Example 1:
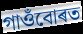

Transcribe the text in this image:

গাওঁবোৰত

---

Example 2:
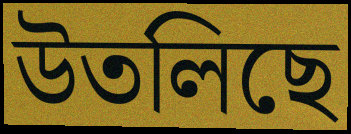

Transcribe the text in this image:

উতলিছে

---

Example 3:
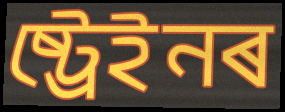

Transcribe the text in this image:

ষ্ট্ৰেইনৰ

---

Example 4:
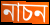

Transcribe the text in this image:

নাচন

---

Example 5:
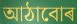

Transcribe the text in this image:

আঠাবোৰ